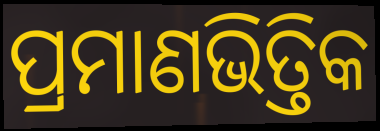
ପ୍ରମାଣଭିତ୍ତିକ